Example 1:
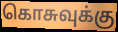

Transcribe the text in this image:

கொசுவுக்கு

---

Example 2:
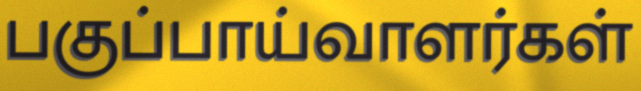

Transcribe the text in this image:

பகுப்பாய்வாளர்கள்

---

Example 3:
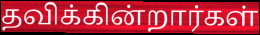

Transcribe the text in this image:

தவிக்கின்றார்கள்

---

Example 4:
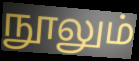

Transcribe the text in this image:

நூலும்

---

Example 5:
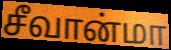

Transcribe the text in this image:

சீவான்மா